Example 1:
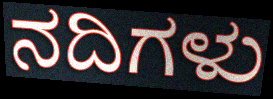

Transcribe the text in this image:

ನದಿಗಳು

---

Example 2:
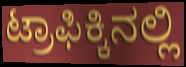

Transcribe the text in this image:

ಟ್ರಾಫಿಕ್ಕಿನಲ್ಲಿ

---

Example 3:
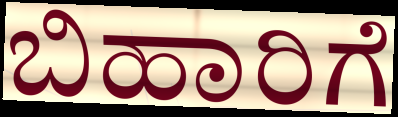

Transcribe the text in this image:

ಬಿಹಾರಿಗೆ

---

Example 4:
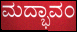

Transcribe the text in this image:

ಮದ್ಭಾವಂ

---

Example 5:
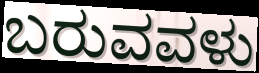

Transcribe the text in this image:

ಬರುವವಳು